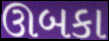
ઊબકા